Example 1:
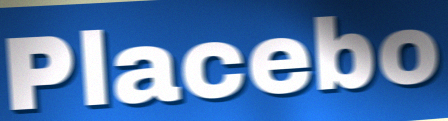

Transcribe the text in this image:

Placebo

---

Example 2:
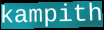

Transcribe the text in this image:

kampith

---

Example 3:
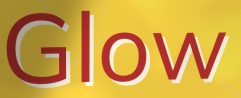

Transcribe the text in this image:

Glow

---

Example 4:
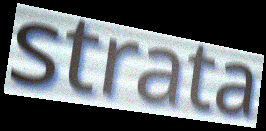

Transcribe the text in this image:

strata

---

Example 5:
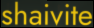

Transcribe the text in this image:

shaivite